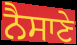
ਨੈਸਾਣੇ